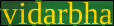
vidarbha